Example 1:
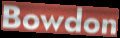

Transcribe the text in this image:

Bowdon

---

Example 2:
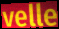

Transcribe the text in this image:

velle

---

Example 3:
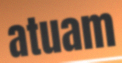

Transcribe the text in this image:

atuam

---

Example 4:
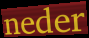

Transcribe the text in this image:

neder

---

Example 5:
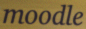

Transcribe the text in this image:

moodle